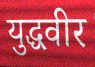
युद्धवीर